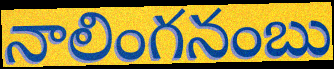
నాలింగనంబు